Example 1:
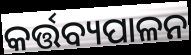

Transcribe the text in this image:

କର୍ତ୍ତବ୍ୟପାଳନ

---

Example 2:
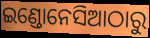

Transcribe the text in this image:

ଇଣ୍ଡୋନେସିଆଠାରୁ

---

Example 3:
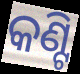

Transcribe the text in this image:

କଣ୍ଟି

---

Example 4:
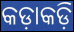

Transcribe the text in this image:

କଡ଼ାକଡ଼ି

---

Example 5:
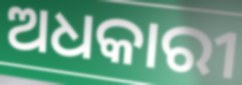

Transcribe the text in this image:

ଅଧକାରୀ